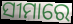
ସୀମାରେ